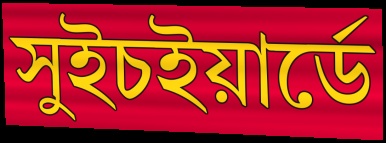
সুইচইয়ার্ডে